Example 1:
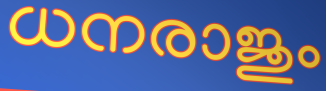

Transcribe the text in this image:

ധനരാജും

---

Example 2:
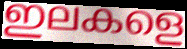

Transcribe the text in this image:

ഇലകളെ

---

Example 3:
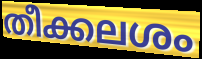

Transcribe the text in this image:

തീക്കലശം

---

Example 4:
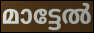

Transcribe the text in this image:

മാട്ടേൽ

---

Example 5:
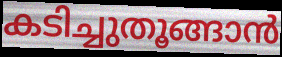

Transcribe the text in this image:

കടിച്ചുതൂങ്ങാൻ